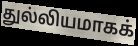
துல்லியமாகக்